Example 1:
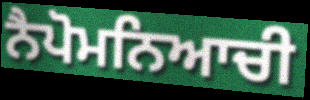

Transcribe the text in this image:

ਨੈਪੋਮਨਿਆਚੀ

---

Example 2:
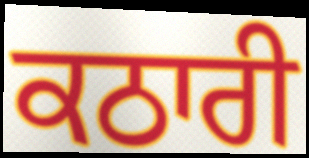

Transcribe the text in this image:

ਕਠਾਰੀ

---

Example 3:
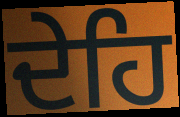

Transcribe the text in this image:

ਦੇਹਿ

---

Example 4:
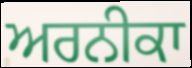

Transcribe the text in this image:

ਅਰਨੀਕਾ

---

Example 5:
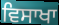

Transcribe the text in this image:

ਵਿਸਾਖਾ